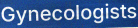
Gynecologists